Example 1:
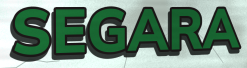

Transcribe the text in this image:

SEGARA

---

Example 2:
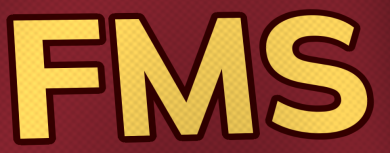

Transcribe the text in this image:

FMS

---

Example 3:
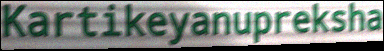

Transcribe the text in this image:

Kartikeyanupreksha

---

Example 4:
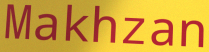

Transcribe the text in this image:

Makhzan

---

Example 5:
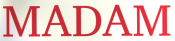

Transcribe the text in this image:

MADAM